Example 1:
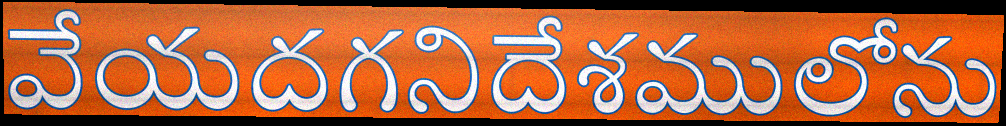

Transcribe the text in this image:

వేయదగనిదేశములోను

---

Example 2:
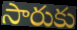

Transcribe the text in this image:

సారుకు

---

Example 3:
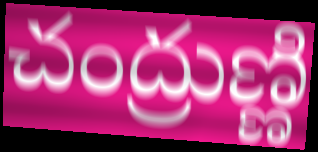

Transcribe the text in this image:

చంద్రుణ్ణి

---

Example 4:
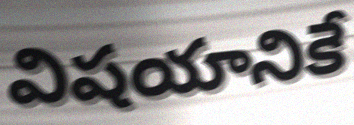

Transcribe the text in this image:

విషయానికే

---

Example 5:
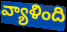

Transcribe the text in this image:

వ్యాళింది